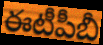
ఈటీపీబీ